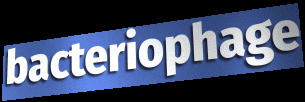
bacteriophage